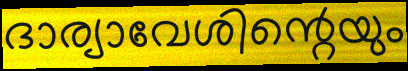
ദാര്യാവേശിന്റെയും